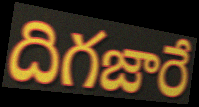
దిగజారే